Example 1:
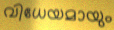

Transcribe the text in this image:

വിധേയമായും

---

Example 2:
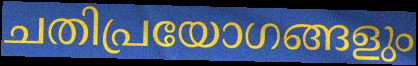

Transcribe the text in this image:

ചതിപ്രയോഗങ്ങളും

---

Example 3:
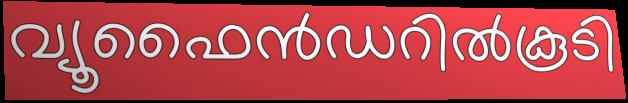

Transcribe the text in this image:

വ്യൂഫൈൻഡറിൽകൂടി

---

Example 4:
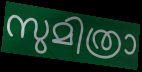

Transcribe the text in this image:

സുമിത്രാ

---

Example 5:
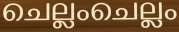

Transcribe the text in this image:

ചെല്ലംചെല്ലം